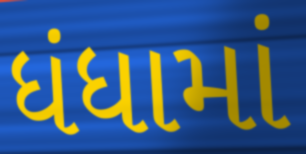
ધંધામાં